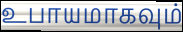
உபாயமாகவும்